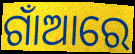
ଗାଁଆରେ